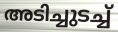
അടിച്ചുടച്ച്